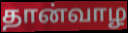
தான்வாழ